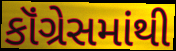
કૉંગ્રેસમાંથી